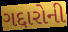
ગદ્દારોની